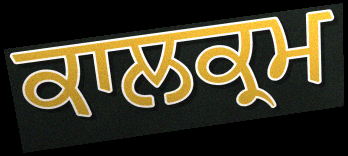
ਕਾਲਕ੍ਰਮ